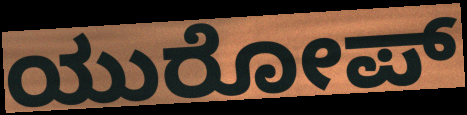
ಯುರೋಪ್